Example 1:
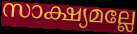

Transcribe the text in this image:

സാക്ഷ്യമല്ലേ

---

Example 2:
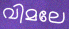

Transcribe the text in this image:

വിമലേ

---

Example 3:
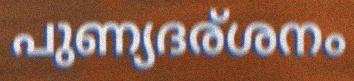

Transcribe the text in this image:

പുണ്യദര്ശനം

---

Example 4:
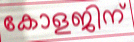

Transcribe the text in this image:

കോളജിന്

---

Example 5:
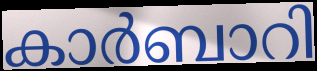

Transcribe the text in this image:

കാർബാറി